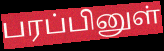
பரப்பினுள்